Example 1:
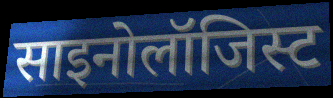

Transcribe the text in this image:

साइनोलॉजिस्ट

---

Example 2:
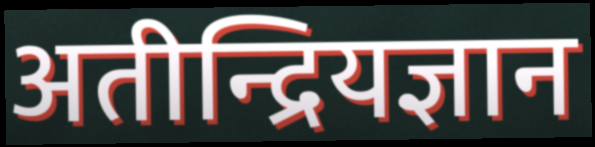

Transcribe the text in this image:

अतीन्द्रियज्ञान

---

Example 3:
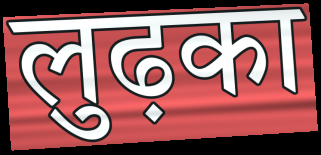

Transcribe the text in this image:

लुढ़का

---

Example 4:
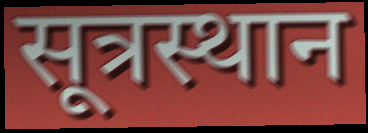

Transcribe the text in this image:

सूत्रस्थान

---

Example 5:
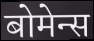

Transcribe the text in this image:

बोमेन्स